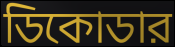
ডিকোডার